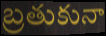
బ్రతుకునా